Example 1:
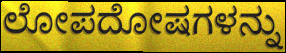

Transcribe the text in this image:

ಲೋಪದೋಷಗಳನ್ನು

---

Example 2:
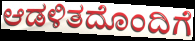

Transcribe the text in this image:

ಆಡಳಿತದೊಂದಿಗೆ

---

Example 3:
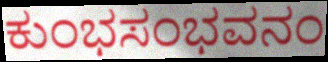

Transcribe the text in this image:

ಕುಂಭಸಂಭವನಂ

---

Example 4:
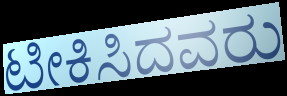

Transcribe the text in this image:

ಟೀಕಿಸಿದವರು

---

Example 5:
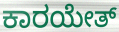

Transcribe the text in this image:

ಕಾರಯೇತ್